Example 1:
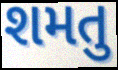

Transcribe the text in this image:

શમતુ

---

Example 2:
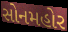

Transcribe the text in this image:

સોનમહોર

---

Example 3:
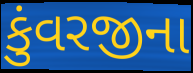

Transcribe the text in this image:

કુંવરજીના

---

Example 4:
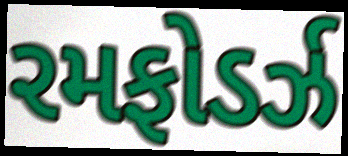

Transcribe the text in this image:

રમફોડર્ઝ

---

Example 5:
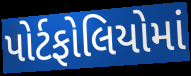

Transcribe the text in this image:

પોર્ટફોલિયોમાં